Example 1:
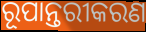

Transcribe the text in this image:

ରୂପାନ୍ତରୀକରଣ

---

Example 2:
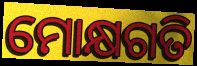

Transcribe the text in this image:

ମୋକ୍ଷଗତି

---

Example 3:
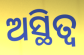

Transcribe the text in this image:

ଅସ୍ଥିତ୍ଵ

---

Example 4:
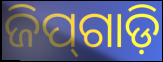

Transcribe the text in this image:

ଜିପ୍‍ଗାଡ଼ି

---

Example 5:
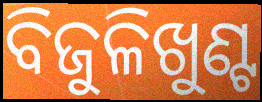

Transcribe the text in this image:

ବିଜୁଳିଖୁଣ୍ଟ